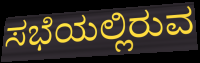
ಸಭೆಯಲ್ಲಿರುವ